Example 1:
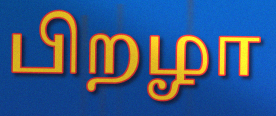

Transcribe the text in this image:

பிறழா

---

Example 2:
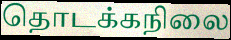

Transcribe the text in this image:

தொடக்கநிலை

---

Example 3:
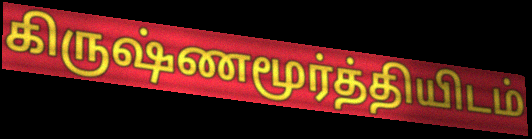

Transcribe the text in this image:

கிருஷ்ணமூர்த்தியிடம்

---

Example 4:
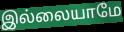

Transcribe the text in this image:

இல்லையாமே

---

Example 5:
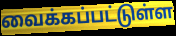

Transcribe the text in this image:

வைக்கப்பட்டுள்ள